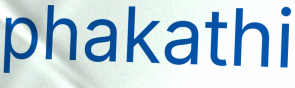
phakathi